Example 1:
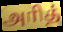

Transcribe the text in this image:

அரித்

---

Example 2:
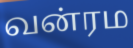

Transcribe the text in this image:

வன்ரம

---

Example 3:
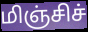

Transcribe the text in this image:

மிஞ்சிச்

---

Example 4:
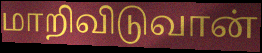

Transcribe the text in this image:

மாறிவிடுவான்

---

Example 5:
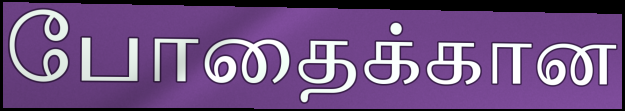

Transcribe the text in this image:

போதைக்கான